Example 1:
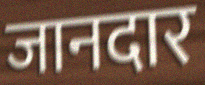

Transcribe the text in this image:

जानदार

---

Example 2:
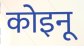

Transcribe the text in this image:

कोइनू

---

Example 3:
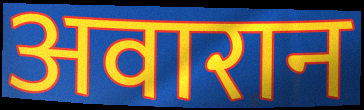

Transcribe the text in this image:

अवारान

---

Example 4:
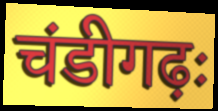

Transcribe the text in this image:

चंडीगढ़ः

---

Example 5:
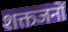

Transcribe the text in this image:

शक्तजनों